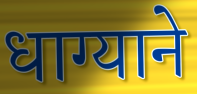
धाग्याने